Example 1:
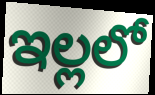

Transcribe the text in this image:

ఇల్లలో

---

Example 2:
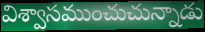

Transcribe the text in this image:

విశ్వాసముంచుచున్నాడు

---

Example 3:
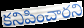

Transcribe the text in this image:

కనిపించారని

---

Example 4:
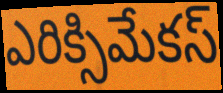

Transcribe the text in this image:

ఎరిక్సిమేకస్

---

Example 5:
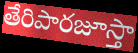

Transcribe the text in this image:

తేరిపారజూస్తా